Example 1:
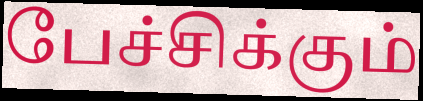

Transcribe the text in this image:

பேச்சிக்கும்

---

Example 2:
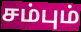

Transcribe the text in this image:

சம்பும்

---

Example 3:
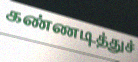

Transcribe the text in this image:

கண்ணடித்துச்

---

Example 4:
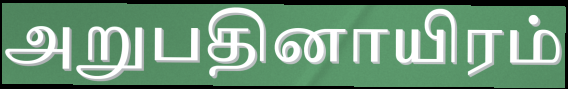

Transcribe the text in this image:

அறுபதினாயிரம்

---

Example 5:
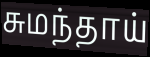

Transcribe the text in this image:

சுமந்தாய்